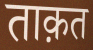
ताक़त